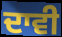
ਦਾਵੀ